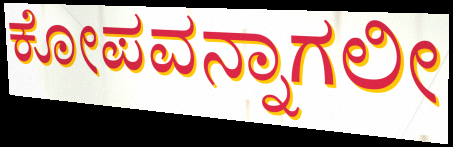
ಕೋಪವನ್ನಾಗಲೀ